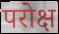
परोक्ष